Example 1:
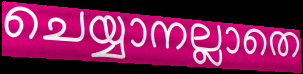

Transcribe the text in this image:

ചെയ്യാനല്ലാതെ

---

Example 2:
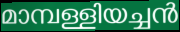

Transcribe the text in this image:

മാമ്പള്ളിയച്ചൻ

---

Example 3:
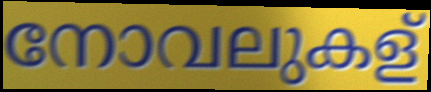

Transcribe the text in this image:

നോവലുകള്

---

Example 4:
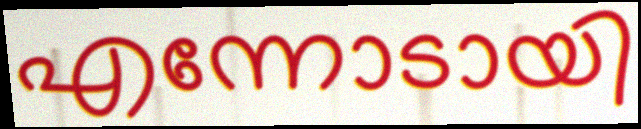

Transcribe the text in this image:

എന്നോടായി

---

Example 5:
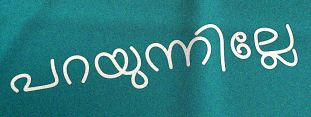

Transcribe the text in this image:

പറയുന്നില്ലേ